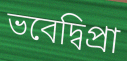
ভবেদ্বিপ্রা